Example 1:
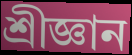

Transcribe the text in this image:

শ্ৰীজ্ঞান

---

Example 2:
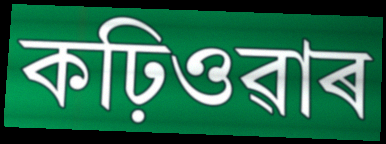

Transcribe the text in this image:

কঢ়িওৱাৰ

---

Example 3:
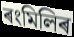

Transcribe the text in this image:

ৰংমিলিৰ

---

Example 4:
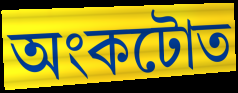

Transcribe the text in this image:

অংকটোত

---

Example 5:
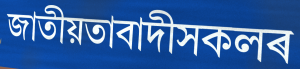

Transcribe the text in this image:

জাতীয়তাবাদীসকলৰ